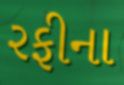
રફીના